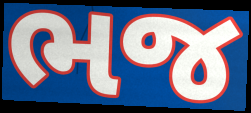
ભજ